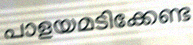
പാളയമടിക്കേണ്ട